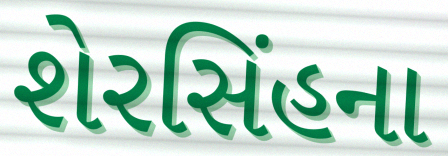
શેરસિંહના